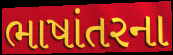
ભાષાંતરના